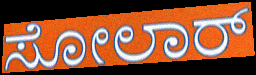
ಸೋಲಾರ್